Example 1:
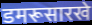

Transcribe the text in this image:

डमरूसारखे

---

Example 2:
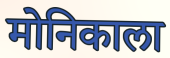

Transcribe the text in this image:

मोनिकाला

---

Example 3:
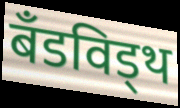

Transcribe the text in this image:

बँडविड्थ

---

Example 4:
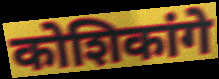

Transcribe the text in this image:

कोशिकांगे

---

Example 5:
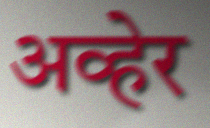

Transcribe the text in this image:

अव्हेर